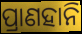
ପ୍ରାଣହାନି